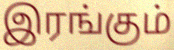
இரங்கும்